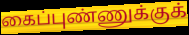
கைப்புண்ணுக்குக்